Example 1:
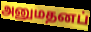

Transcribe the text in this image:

அனுமதனப்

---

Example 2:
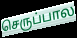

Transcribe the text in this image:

செருப்பால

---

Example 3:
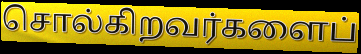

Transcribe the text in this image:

சொல்கிறவர்களைப்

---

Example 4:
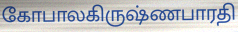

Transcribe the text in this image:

கோபாலகிருஷ்ணபாரதி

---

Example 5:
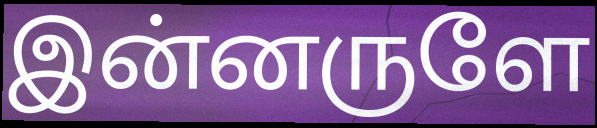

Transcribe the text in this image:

இன்னருளே